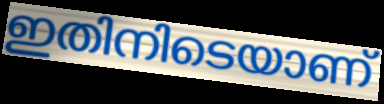
ഇതിനിടെയാണ്